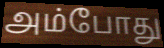
அம்போது